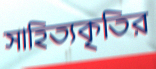
সাহিত্যকৃতির